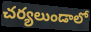
చర్యలుండాలో